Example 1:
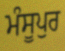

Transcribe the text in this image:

ਮੰਸੂਪੁਰ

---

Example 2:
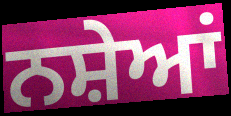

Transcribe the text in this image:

ਨਸ਼ੇਆਂ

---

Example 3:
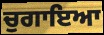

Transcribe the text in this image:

ਚੁਗਾਇਆ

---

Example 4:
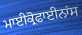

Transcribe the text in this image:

ਮਾਈਕ੍ਰੋਫਾਈਨਾਂਸ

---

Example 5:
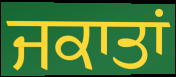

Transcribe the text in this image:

ਜਕਾਤਾਂ